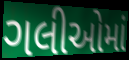
ગલીઓમાં